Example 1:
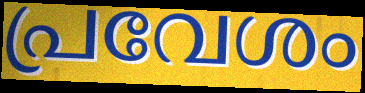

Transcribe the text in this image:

പ്രവേശം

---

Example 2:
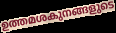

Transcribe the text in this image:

ഉത്തമശകുനങ്ങളുടെ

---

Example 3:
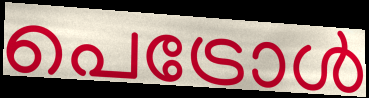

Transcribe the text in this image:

പെട്രോൾ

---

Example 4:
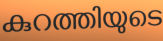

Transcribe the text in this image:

കുറത്തിയുടെ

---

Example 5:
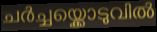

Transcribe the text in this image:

ചർച്ചയ്ക്കൊടുവിൽ